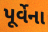
પૂર્વેના